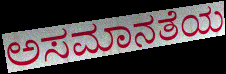
ಅಸಮಾನತೆಯ